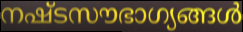
നഷ്ടസൗഭാഗ്യങ്ങൾ